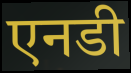
एनडी